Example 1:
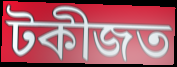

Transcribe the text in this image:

টকীজত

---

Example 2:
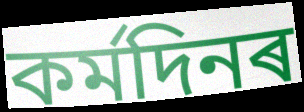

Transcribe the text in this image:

কৰ্মদিনৰ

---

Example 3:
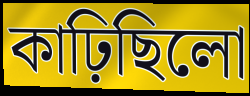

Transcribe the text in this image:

কাঢ়িছিলো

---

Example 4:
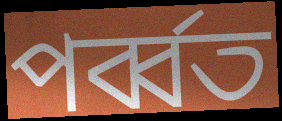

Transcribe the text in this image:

পৰ্ব্বত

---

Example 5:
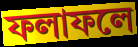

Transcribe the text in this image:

ফলাফলে